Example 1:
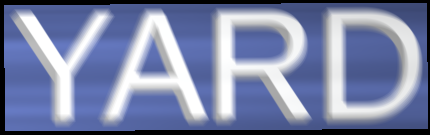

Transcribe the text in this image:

YARD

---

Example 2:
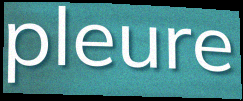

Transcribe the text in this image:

pleure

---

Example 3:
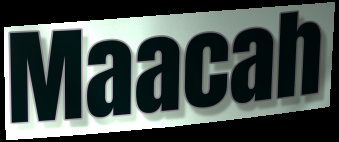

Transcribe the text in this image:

Maacah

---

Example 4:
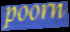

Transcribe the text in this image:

poorn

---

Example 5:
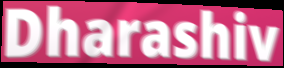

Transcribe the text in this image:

Dharashiv